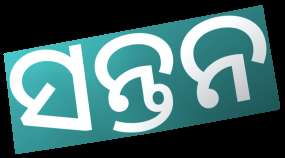
ସନ୍ତନ